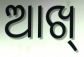
ଆଖ୍